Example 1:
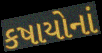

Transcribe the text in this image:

કષાયોનાં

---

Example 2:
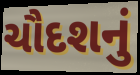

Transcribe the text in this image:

ચૌદશનું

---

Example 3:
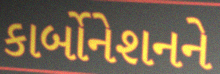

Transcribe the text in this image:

કાર્બોનેશનને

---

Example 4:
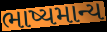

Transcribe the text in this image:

ભાષ્યમાન્ય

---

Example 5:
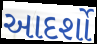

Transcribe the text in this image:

આદર્શો